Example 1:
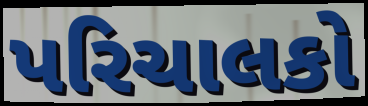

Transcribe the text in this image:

પરિચાલકો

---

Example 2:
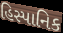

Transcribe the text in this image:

હિસ્પાનિક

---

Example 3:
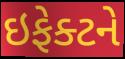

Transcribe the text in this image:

ઇફેક્ટને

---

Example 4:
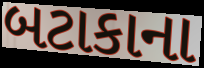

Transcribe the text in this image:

બટાકાના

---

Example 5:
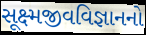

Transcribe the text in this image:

સૂક્ષ્મજીવવિજ્ઞાનનો